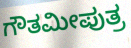
ಗೌತಮೀಪುತ್ರ